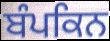
ਬੰਪਕਿਨ